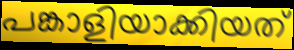
പങ്കാളിയാക്കിയത്